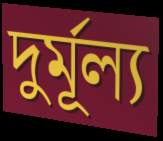
দুর্মূল্য